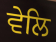
ਵੇਲਿ